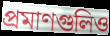
প্রমাণগুলিও